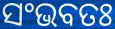
ସଂଭବତଃ